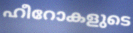
ഹീറോകളുടെ